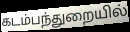
கடம்பந்துறையில்